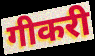
गीकरी